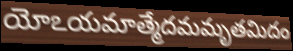
యోఽయమాత్మేదమమృతమిదం